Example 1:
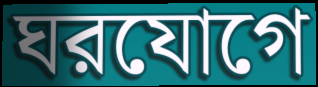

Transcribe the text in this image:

ঘরযোগে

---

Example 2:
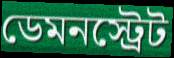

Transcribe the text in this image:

ডেমনস্ট্রেট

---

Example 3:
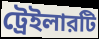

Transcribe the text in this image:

ট্রেইলারটি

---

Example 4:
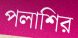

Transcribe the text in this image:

পলাশির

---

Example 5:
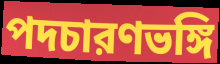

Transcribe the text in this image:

পদচারণভঙ্গি